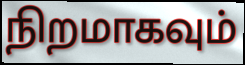
நிறமாகவும்